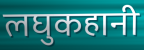
लघुकहानी